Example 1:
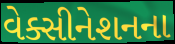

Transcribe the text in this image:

વેક્સીનેશનના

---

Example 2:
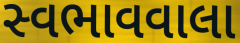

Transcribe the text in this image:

સ્વભાવવાલા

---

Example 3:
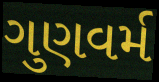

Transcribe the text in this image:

ગુણવર્મ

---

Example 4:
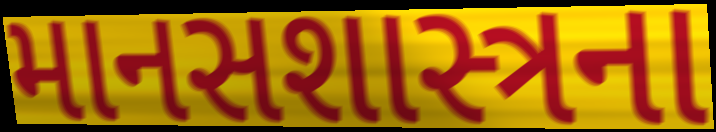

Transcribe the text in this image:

માનસશાસ્ત્રના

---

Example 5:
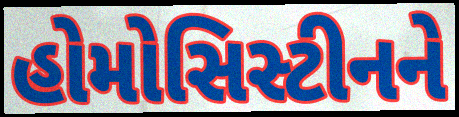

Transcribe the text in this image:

હોમોસિસ્ટીનને